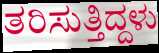
ತರಿಸುತ್ತಿದ್ದಳು